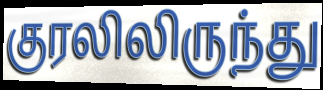
குரலிலிருந்து